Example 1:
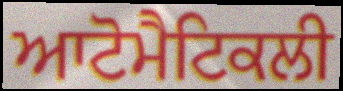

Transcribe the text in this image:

ਆਟੋਮੈਟਿਕਲੀ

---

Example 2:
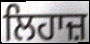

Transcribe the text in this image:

ਲਿਹਾਜ਼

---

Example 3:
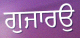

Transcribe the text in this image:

ਗੁਜਾਰਉ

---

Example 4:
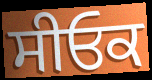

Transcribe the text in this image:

ਸੀਓਕ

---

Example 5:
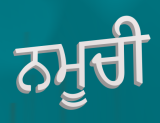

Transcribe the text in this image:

ਨਮੂਚੀ